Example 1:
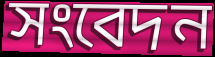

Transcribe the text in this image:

সংবেদন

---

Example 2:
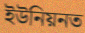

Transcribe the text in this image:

ইউনিয়নত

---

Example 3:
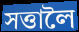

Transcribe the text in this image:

সত্তালৈ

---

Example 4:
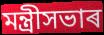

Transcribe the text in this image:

মন্ত্ৰীসভাৰ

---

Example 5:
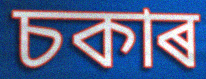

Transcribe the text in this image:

চকাৰ